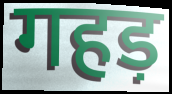
गहड़